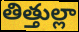
తిత్తుల్లా